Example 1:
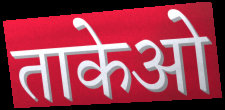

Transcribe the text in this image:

ताकेओ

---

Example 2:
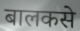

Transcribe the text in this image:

बालकसे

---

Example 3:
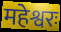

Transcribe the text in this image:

महेश्वरः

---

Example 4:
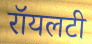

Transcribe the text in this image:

रॉयलटी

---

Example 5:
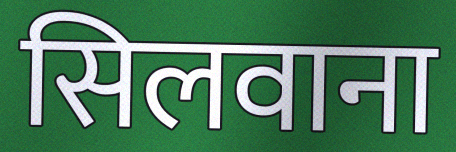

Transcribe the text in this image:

सिलवाना